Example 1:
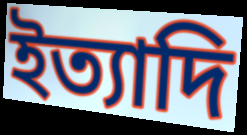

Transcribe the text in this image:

ইত্যাদি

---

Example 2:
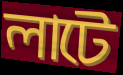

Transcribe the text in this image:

লাটে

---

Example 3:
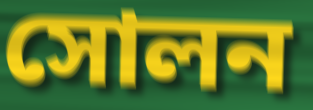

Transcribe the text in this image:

সোলন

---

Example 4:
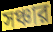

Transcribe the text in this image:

সঞ্চার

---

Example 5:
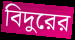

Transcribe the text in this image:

বিদুরের